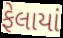
ફેલાયાં